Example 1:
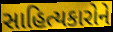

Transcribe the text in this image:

સાહિત્યકારોને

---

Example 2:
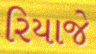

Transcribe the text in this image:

રિયાજે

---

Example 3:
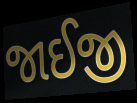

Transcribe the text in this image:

જાઈજી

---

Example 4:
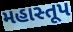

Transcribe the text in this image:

મહાસ્તૂપ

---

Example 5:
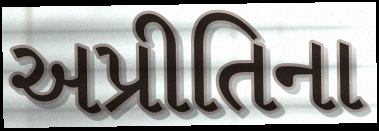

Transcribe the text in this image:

અપ્રીતિના